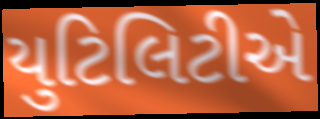
યુટિલિટીએ